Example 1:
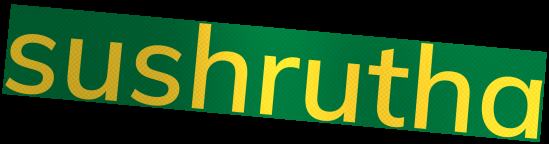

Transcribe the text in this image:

sushrutha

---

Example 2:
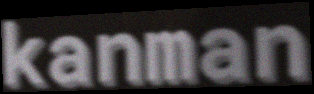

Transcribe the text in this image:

kanman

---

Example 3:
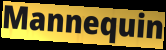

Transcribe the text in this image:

Mannequin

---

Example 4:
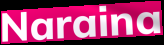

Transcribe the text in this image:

Naraina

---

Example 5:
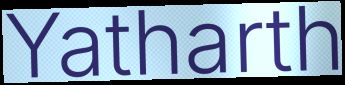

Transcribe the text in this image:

Yatharth